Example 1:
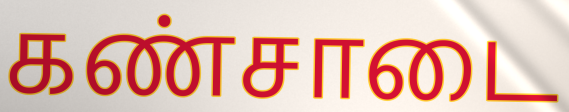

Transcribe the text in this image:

கண்சாடை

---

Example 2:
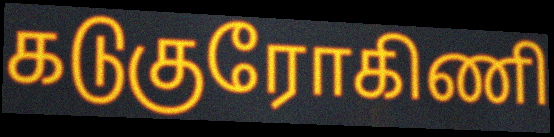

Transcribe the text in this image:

கடுகுரோகிணி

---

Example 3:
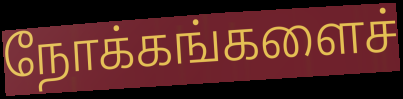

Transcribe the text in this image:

நோக்கங்களைச்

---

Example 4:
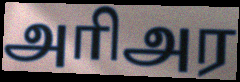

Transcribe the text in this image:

அரிஅர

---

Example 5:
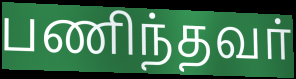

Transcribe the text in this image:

பணிந்தவர்